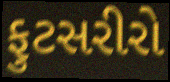
ફુટસરીરો